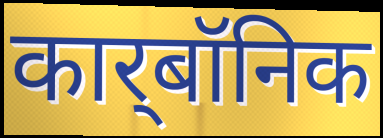
कार्‌बॉनिक